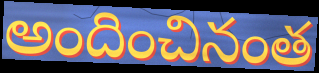
అందించినంత